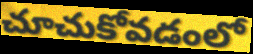
చూచుకోవడంలో